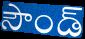
సౌండ్